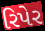
રિપેર